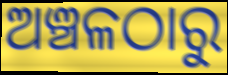
ଅଞ୍ଚଳଠାରୁ